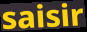
saisir